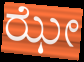
ಝೇ